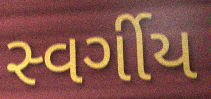
સ્વર્ગીય